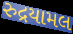
રુદ્રયામલ